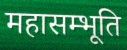
महासम्भूति